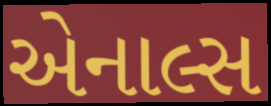
એનાલ્સ